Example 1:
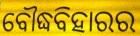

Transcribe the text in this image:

ବୌଦ୍ଧବିହାରର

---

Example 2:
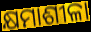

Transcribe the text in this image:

କ୍ଷମାଶୀଳା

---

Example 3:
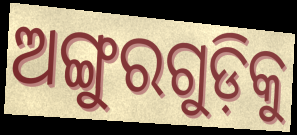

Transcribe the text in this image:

ଅଙ୍ଗୁରଗୁଡ଼ିକୁ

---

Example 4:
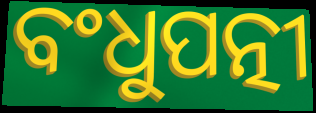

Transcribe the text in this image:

ବଂଧୁପତ୍ନୀ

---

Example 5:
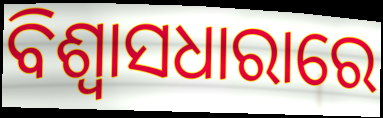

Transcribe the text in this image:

ବିଶ୍ଵାସଧାରାରେ